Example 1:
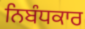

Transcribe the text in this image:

ਨਿਬੰਧਕਾਰ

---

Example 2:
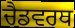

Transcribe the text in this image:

ਚੈਡਵਰਥ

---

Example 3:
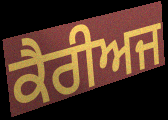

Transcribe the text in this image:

ਕੈਰੀਅਜ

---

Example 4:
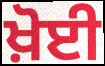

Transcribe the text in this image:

ਖ਼ੋਈ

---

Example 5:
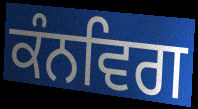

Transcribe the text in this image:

ਕੰਨਵਿਗ